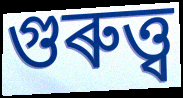
গুৰুত্ত্ব